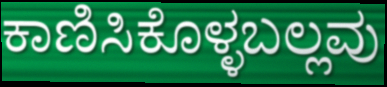
ಕಾಣಿಸಿಕೊಳ್ಳಬಲ್ಲವು